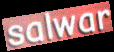
salwar